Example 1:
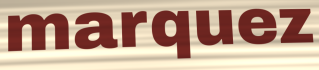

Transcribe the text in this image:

marquez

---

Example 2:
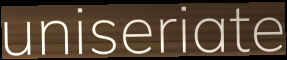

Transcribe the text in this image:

uniseriate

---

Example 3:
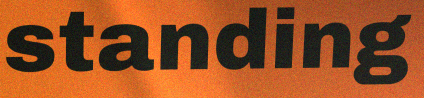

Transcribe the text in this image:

standing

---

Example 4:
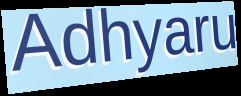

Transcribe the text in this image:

Adhyaru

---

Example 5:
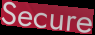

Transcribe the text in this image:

Secure